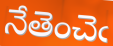
నేతెంచెఁ